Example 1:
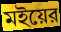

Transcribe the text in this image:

মইয়ের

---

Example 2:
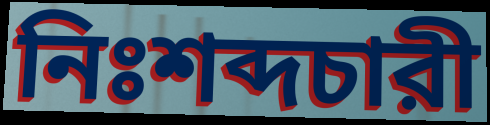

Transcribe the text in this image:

নিঃশব্দচারী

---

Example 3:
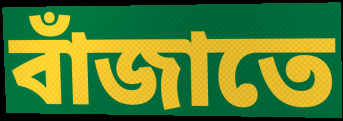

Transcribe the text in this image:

বাঁজাতে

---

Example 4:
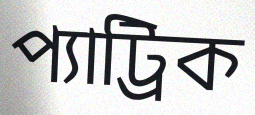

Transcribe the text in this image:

প্যাট্রিক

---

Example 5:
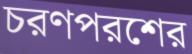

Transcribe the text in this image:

চরণপরশের